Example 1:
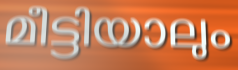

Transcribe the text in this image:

മീട്ടിയാലും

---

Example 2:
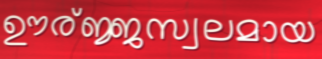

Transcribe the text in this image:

ഊര്ജ്ജസ്വലമായ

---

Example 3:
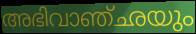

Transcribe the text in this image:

അഭിവാഞ്ഛയും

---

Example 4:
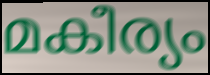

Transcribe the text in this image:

മകീര്യം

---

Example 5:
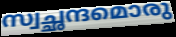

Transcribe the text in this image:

സ്വച്ഛന്ദമൊരു